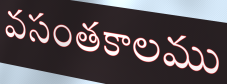
వసంతకాలము